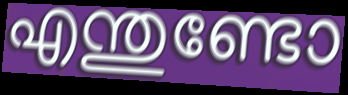
എന്തുണ്ടോ